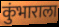
कुंभाराला